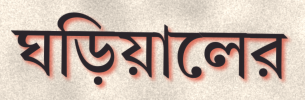
ঘড়িয়ালের